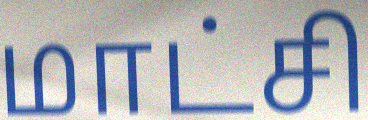
மாட்சி